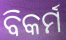
ବିକର୍ମ